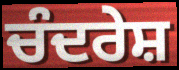
ਚੰਦਰੇਸ਼